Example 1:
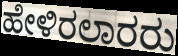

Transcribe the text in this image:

ಹೇಳಿರಲಾರರು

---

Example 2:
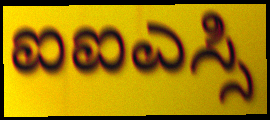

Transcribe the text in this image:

ಐಐಎಸ್ಸಿ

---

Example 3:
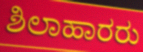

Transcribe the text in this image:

ಶಿಲಾಹಾರರು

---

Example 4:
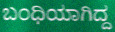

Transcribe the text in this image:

ಬಂಧಿಯಾಗಿದ್ದ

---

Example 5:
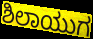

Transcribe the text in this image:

ಶಿಲಾಯುಗ